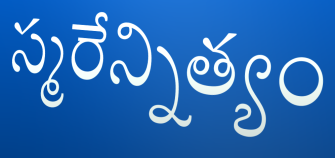
స్మరేన్నిత్యం